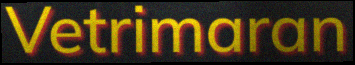
Vetrimaran